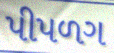
પીપળગ